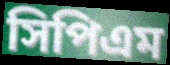
সিপিএম